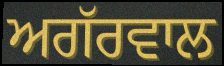
ਅਗੱਰਵਾਲ